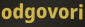
odgovori